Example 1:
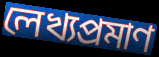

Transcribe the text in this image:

লেখ্যপ্রমাণ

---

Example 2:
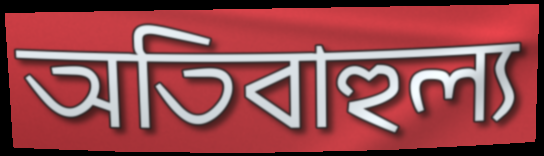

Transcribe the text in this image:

অতিবাহুল্য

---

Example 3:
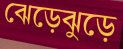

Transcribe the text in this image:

ঝেড়েঝুড়ে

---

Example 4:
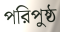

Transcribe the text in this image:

পরিপুষ্ঠ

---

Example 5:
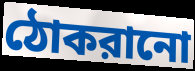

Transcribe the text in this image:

ঠোকরানো